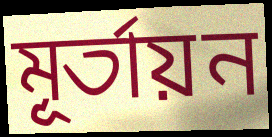
মূর্তায়ন